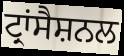
ਟ੍ਰਾਂਸੈਸ਼ਨਲ